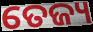
ତେଜ୍ୟ